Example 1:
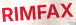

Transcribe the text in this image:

RIMFAX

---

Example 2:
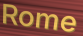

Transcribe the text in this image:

Rome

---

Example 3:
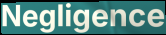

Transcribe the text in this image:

Negligence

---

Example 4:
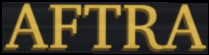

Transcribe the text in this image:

AFTRA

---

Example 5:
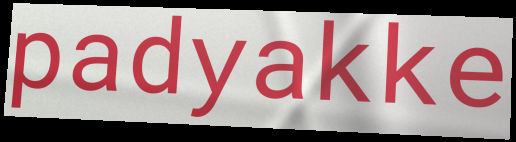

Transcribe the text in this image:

padyakke